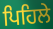
ਪਿਹਿਲੇ